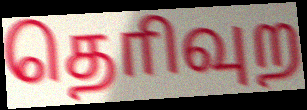
தெரிவுற